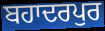
ਬਹਾਦਰਪੁਰ